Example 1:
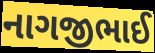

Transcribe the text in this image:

નાગજીભાઈ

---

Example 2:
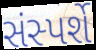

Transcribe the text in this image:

સંસ્પર્શે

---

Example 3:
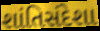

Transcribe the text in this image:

શાંતિસંદેશા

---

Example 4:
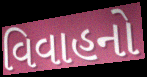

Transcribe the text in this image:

વિવાહનો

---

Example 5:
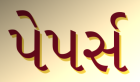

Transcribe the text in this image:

પેપર્સ